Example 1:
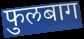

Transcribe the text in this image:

फुलबाग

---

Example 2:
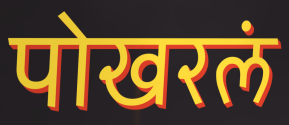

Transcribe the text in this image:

पोखरलं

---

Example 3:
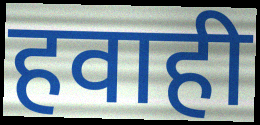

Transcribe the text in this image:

हवाही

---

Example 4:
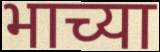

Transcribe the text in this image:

भाच्या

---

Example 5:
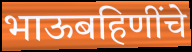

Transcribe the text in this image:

भाऊबहिणींचे